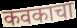
कवकाचा